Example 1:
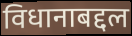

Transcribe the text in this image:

विधानाबद्दल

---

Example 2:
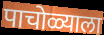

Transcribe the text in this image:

पाचोळ्याला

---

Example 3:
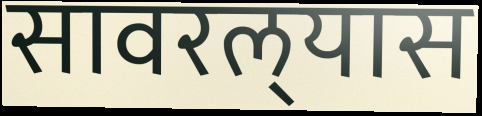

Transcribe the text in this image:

सावरल्यास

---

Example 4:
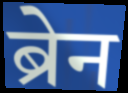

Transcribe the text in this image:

ब्रेन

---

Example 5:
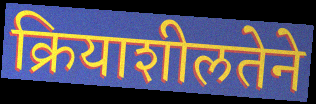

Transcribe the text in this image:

क्रियाशीलतेने